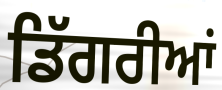
ਡਿੱਗਰੀਆਂ